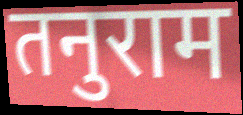
तनुराम